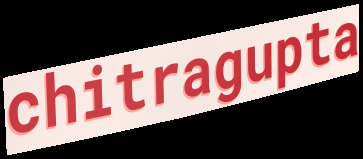
chitragupta